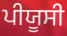
ਪੀਯੂਸੀ